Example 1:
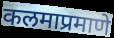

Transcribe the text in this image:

कलमाप्रमाणे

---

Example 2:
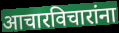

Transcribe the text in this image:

आचारविचारांना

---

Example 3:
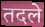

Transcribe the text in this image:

तदले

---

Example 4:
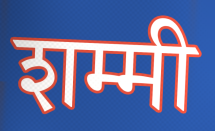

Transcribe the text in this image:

शम्मी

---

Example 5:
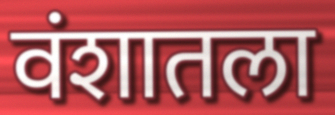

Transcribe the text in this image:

वंशातला